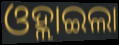
ଓହ୍ଲାଇଲା